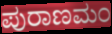
ಪುರಾಣಮಂ